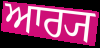
ਆਰ੍ਯ